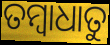
ତମ୍ବାଧାତୁ